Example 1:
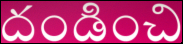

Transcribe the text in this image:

దండించి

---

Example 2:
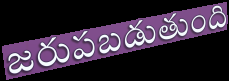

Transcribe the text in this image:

జరుపబడుతుంది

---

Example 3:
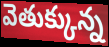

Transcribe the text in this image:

వెతుక్కున్న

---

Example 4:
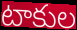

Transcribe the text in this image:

టాకుల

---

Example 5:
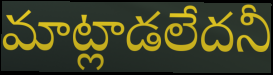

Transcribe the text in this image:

మాట్లాడలేదనీ